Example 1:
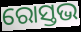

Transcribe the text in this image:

ରୋସ୍ତଭ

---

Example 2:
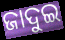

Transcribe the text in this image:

ଜାଦୁଇ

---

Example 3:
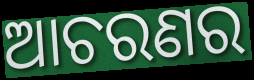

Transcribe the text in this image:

ଆଚରଣର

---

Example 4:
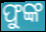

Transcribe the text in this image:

ଫୁଙ୍କ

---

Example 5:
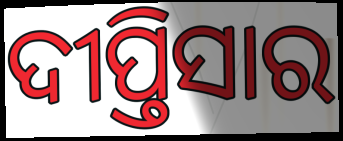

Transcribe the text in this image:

ଦୀପ୍ତିସାର